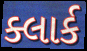
ક્લાર્ક